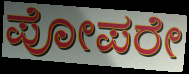
ಪೋಪರೇ